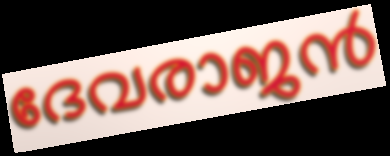
ദേവരാജൻ